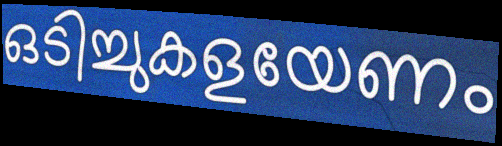
ഒടിച്ചുകളയേണം